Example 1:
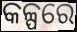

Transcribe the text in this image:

କଳ୍ପରେ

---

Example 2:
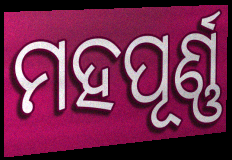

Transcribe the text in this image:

ମହପୂର୍ଣ୍ଣ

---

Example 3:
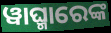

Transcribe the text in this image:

ୱାଘ୍ମାରେଙ୍କ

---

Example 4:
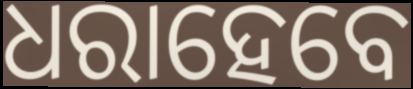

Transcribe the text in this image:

ଧରାହେବେ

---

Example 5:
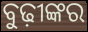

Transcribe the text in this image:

ବୁଢ଼ୀଙ୍କର